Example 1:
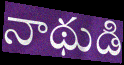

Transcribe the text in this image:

నాథుడి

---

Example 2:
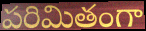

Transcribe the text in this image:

పరిమితంగా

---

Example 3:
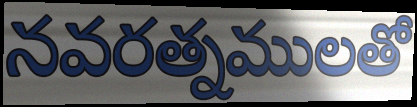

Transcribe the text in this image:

నవరత్నములతో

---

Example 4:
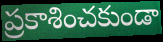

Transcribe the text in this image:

ప్రకాశించకుండా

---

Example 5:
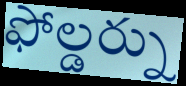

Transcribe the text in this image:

ఫోల్డర్ను